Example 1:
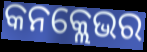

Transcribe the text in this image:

କନକ୍ଲେଭର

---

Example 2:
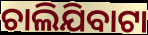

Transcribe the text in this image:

ଚାଲିଯିବାଟା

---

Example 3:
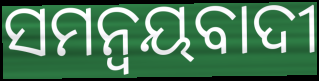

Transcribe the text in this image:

ସମନ୍ୱୟବାଦୀ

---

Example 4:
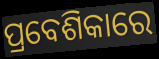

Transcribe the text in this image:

ପ୍ରବେଶିକାରେ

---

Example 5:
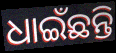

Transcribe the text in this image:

ଧାଇଁଛନ୍ତି